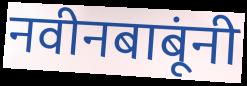
नवीनबाबूंनी